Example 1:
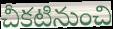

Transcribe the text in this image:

చీకటినుంచి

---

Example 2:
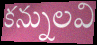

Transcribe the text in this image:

కన్నులవి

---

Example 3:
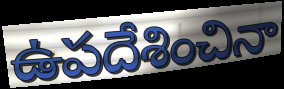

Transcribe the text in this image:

ఉపదేశించినా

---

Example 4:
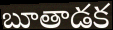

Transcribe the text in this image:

బూతాడక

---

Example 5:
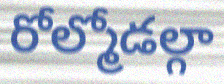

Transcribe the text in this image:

రోల్మోడల్గా